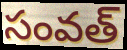
సంవత్